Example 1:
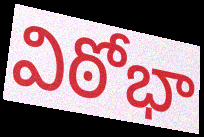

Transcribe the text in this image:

విఠోభా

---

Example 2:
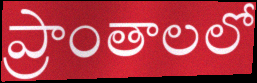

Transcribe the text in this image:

ప్రాంతాలలో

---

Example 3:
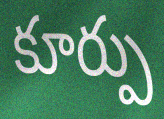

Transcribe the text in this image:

కూర్పు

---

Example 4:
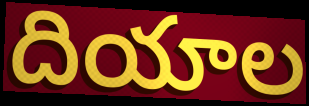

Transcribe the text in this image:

దియాల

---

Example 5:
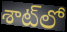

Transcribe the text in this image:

శాట్‌లో